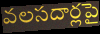
వలసదార్లపై